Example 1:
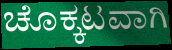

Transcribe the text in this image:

ಚೊಕ್ಕಟವಾಗಿ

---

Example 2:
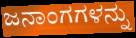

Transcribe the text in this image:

ಜನಾಂಗಗಳನ್ನು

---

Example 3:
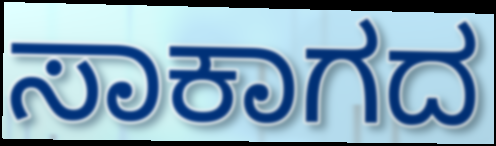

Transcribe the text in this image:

ಸಾಕಾಗದ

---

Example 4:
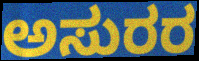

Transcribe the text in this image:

ಅಸುರರ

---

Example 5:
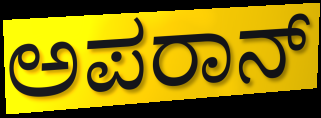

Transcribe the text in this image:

ಅಪರಾನ್